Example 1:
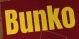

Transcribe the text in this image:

Bunko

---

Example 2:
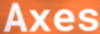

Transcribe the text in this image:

Axes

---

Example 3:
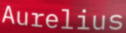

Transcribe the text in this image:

Aurelius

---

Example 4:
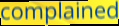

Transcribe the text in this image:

complained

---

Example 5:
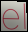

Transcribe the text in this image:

el